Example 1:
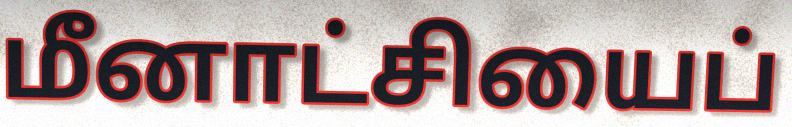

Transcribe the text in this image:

மீனாட்சியைப்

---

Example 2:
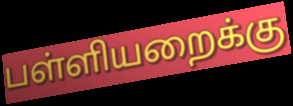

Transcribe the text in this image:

பள்ளியறைக்கு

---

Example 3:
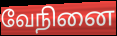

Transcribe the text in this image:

வேநினை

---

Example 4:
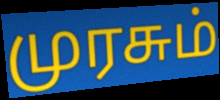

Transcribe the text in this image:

முரசும்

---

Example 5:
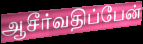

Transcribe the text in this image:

ஆசீர்வதிப்பேன்